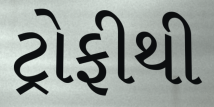
ટ્રોફીથી